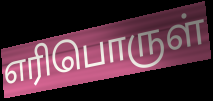
எரிபொருள்